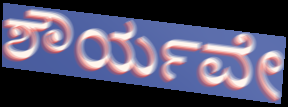
ಶೌರ್ಯವೇ